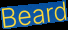
Beard